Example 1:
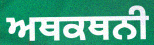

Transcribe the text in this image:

ਅਥਕਥਨੀ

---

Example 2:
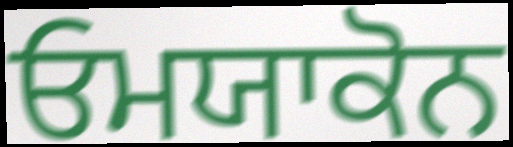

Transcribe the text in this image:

ਓਮਯਾਕੋਨ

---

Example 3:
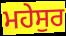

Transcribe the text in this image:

ਮਹੇਸੁਰ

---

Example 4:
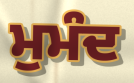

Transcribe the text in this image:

ਮੁਮੰਦ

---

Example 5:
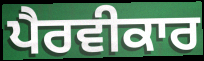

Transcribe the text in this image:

ਪੈਰਵੀਕਾਰ